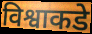
विश्वाकडे